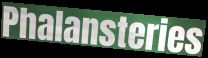
Phalansteries